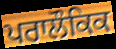
ਪਰਾਲੌਕਿਕ